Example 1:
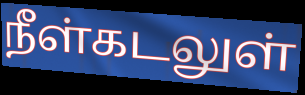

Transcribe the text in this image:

நீள்கடலுள்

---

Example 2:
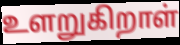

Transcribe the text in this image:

உளறுகிறாள்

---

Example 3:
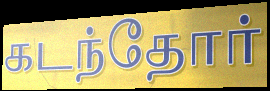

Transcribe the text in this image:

கடந்தோர்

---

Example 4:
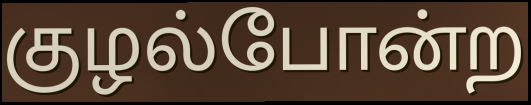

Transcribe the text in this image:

குழல்போன்ற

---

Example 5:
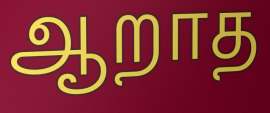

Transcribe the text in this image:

ஆறாத